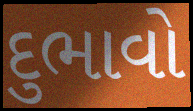
દુભાવો